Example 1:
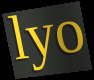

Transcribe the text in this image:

lyo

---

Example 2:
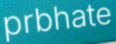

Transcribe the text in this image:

prbhate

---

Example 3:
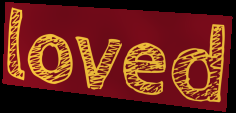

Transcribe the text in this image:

loved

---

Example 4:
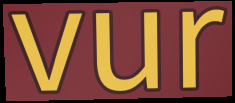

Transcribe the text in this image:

vur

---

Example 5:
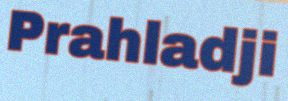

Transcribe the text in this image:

Prahladji